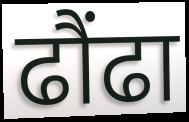
ढौंढा